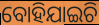
ବୋହିଯାଇଚି